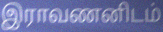
இராவணனிடம்